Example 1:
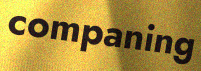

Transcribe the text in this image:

companing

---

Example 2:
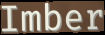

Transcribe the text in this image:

Imber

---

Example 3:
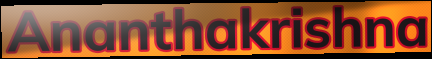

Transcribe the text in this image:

Ananthakrishna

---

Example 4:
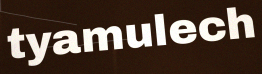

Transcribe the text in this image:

tyamulech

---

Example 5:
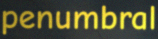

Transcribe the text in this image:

penumbral